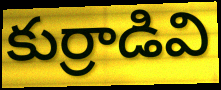
కుర్రాడివి